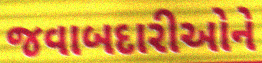
જવાબદારીઓને